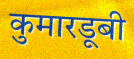
कुमारडूबी